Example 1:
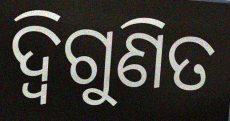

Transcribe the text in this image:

ଦ୍ଵିଗୁଣିତ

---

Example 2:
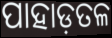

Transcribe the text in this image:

ପାହାଡ଼ତଳ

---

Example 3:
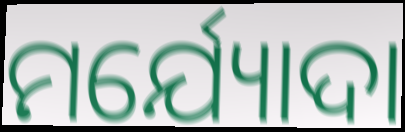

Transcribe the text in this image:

ମର୍ଯ୍ୟୋଦା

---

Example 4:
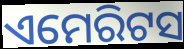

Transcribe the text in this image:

ଏମେରିଟସ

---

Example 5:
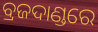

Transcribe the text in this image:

ବ୍ରଜଦାଣ୍ଡରେ